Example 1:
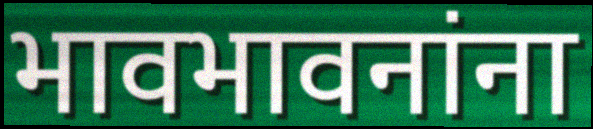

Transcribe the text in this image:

भावभावनांना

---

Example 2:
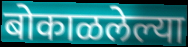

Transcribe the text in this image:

बोकाळलेल्या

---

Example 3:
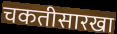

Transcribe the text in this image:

चकतीसारखा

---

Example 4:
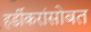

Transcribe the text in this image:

हर्डीकरांसोबत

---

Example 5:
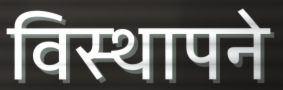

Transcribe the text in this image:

विस्थापने